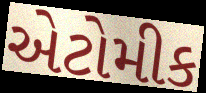
એટોમીક